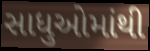
સાધુઓમાંથી